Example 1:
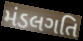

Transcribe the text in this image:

મંડલગતિ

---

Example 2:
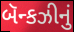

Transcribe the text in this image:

બૅન્કઝીનું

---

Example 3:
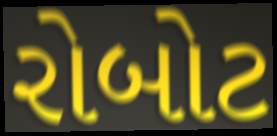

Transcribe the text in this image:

રોબોટ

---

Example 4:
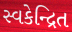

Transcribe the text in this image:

સ્વકેન્દ્રિત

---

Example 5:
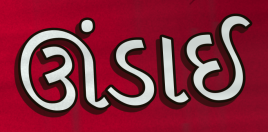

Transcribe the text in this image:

ઊંડાઈ